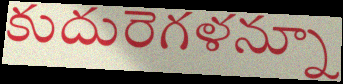
కుదురెగళన్నూ